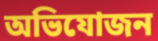
অভিযোজন